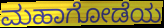
ಮಹಾಗೋಡೆಯ